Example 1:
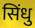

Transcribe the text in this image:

सिंधु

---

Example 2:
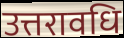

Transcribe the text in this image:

उत्तरावधि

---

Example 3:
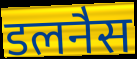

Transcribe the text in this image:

डलनैस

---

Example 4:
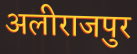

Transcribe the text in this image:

अलीराजपुर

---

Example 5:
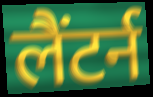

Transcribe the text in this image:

लैंटर्न